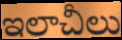
ఇలాచీలు